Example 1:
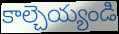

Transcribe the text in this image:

కాల్చెయ్యండి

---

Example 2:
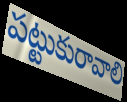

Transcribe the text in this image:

పట్టుకురావాలి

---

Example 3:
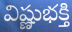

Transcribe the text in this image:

విష్ణుభక్తి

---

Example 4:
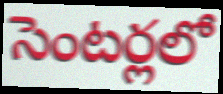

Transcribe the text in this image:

సెంటర్లలో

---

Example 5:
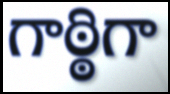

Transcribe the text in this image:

గాఠ్ఠిగా